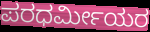
ಪರಧರ್ಮೀಯರ